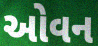
ઓવન